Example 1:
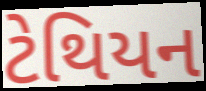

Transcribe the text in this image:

ટેથિયન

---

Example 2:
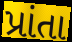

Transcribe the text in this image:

પ્રાંતા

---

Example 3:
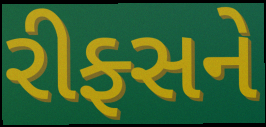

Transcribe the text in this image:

રીફ્સને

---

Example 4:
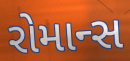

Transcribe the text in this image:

રોમાન્સ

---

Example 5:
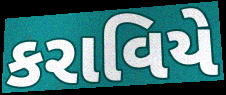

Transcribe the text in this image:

કરાવિયે